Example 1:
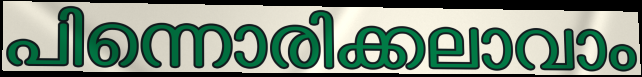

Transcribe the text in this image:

പിന്നൊരിക്കലാവാം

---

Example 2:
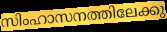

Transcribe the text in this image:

സിംഹാസനത്തിലേക്കു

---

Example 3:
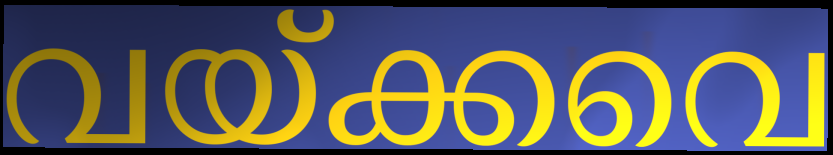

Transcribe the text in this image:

വയ്ക്കവെ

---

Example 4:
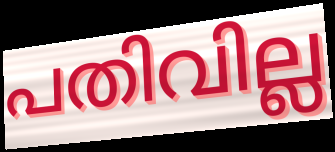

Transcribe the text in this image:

പതിവില്ല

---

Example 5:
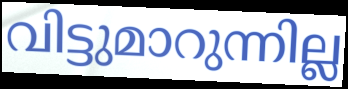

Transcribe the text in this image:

വിട്ടുമാറുന്നില്ല